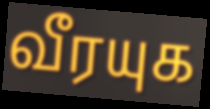
வீரயுக